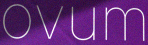
ovum